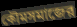
কৌমসমাজের